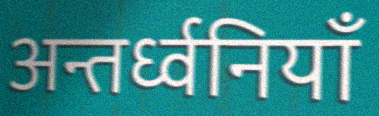
अन्तर्ध्वनियाँ